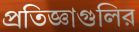
প্রতিজ্ঞাগুলির